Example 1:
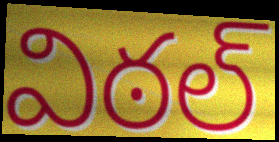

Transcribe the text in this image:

విఠల్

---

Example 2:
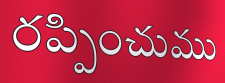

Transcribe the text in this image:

రప్పించుము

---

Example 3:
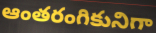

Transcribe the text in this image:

ఆంతరంగికునిగా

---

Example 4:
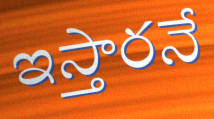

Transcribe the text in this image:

ఇస్తారనే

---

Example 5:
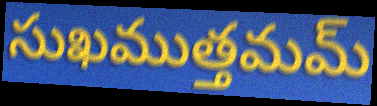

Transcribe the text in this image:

సుఖముత్తమమ్